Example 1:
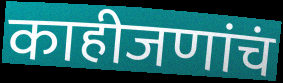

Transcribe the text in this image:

काहीजणांचं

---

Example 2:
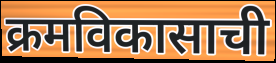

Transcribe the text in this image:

क्रमविकासाची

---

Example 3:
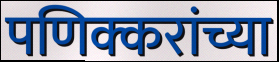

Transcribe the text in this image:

पणिक्करांच्या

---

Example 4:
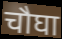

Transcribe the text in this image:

चौघा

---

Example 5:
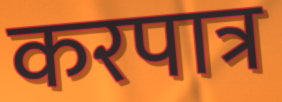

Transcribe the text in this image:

करपात्र